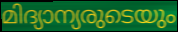
മിദ്യാന്യരുടെയും